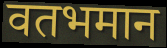
वतभमान